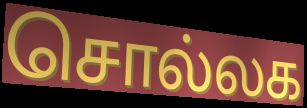
சொல்லக